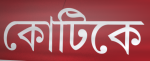
কোটিকে